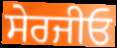
ਸੇਰਜੀਓ